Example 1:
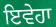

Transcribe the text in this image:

ਇਵੇਹਾ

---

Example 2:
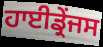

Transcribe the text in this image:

ਹਾਈਡ੍ਰੇਂਜਸ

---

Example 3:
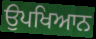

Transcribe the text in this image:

ਉਪਖਿਆਨ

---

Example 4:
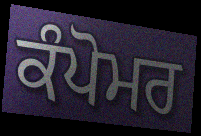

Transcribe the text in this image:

ਕੰਪੋਮਰ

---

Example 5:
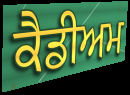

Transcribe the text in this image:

ਕੈਡੀਅਮ